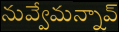
నువ్వేమన్నావ్